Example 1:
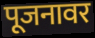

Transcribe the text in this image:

पूजनावर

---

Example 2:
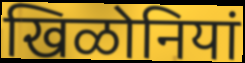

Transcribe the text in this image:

खिळोनियां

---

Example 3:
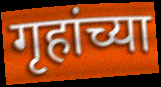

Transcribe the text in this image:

गृहांच्या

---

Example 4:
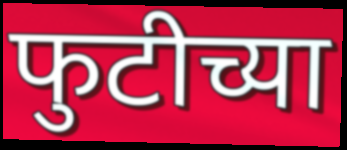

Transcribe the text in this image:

फुटीच्या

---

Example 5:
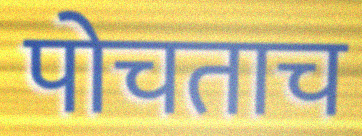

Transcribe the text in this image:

पोचताच